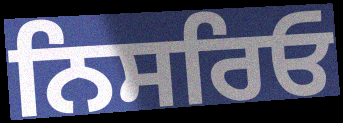
ਨਿਸਰਿਓ